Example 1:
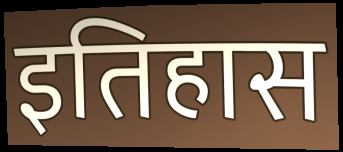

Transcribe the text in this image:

इतिहास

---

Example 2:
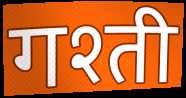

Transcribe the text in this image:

गश्ती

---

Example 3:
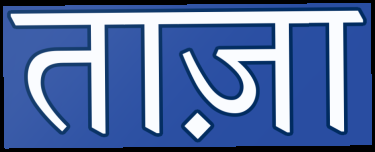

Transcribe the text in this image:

ताज़ा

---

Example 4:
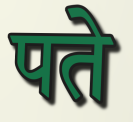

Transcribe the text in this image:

पते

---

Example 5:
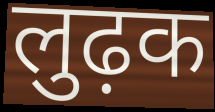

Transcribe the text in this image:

लुढ़क